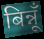
बिन्नूँ